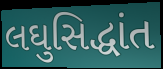
લઘુસિદ્ધાંત